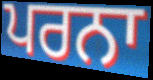
ਪਰਨਾ